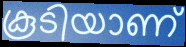
കൂടിയാണ്